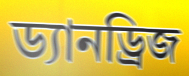
ড্যানড্রিজ